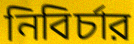
নিবির্চার